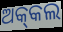
ଅକ୍‌କଲ